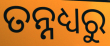
ତନ୍ନଧ୍ୟରୁ